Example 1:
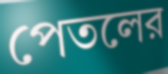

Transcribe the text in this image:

পেতলের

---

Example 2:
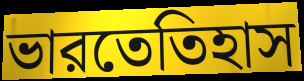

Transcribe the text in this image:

ভারতেতিহাস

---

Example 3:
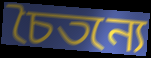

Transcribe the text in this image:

চৈতন্যে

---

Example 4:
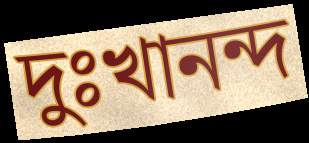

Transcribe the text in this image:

দুঃখানন্দ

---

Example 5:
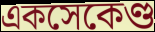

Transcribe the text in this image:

একসেকেণ্ড